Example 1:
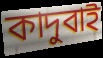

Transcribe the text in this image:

কাদুবাই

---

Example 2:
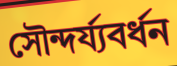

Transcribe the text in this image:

সৌন্দৰ্য্যবৰ্ধন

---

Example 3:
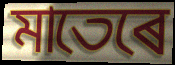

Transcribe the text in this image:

মাতেৰে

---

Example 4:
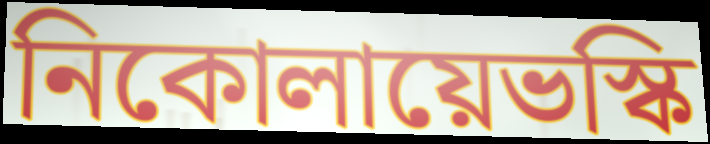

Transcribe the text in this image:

নিকোলায়েভস্কি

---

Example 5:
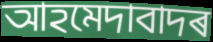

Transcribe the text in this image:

আহমেদাবাদৰ